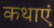
कथाएं